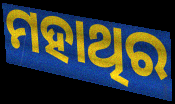
ମହାଥିର